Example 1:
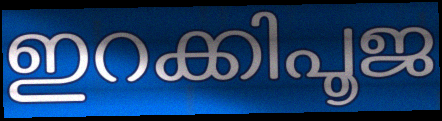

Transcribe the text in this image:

ഇറക്കിപൂജ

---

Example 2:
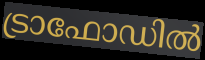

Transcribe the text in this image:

ട്രാഫോഡിൽ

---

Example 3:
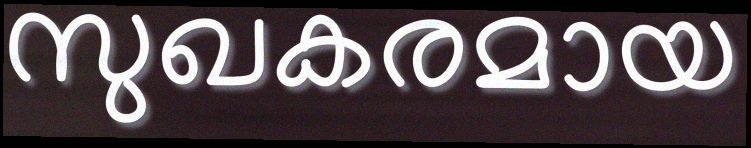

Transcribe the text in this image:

സുഖകരമായ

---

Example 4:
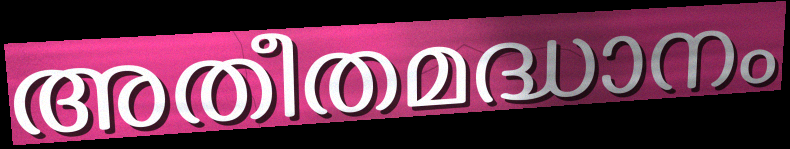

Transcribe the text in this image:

അതീതമദ്ധാനം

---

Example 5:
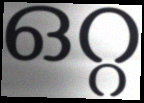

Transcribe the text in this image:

ഒറ്റ